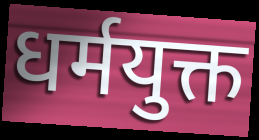
धर्मयुक्त